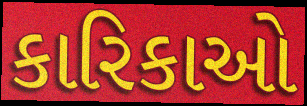
કારિકાઓ